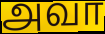
அவா